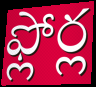
ఫ్లోర్ల